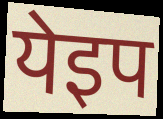
येइप